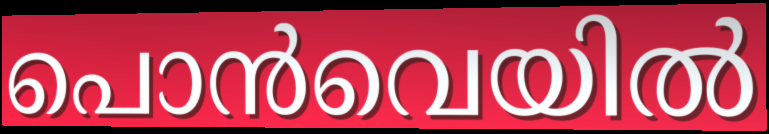
പൊൻവെയിൽ